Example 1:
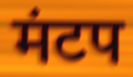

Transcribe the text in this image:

मंटप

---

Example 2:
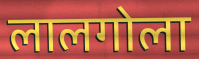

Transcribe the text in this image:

लालगोला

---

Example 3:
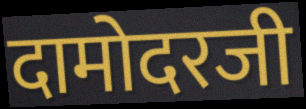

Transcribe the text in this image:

दामोदरजी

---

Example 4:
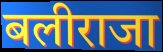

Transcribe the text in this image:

बलीराजा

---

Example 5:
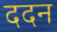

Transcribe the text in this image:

ददन